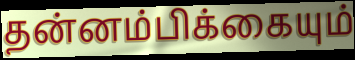
தன்னம்பிக்கையும்